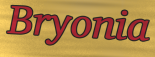
Bryonia